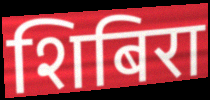
शिबिरा